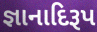
જ્ઞાનાદિરૂપ